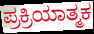
ಪ್ರಕ್ರಿಯಾತ್ಮಕ